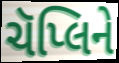
ચૅપ્લિને